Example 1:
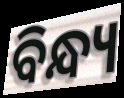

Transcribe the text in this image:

ବିନ୍ଧ୍ୟ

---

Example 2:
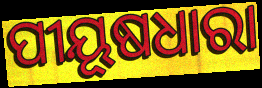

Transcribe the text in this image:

ପୀୟୂଷଧାରା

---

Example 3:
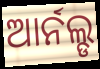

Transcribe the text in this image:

ଆର୍ନଲ୍ଡ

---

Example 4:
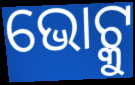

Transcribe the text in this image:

ଭୋଟ୍କୁ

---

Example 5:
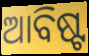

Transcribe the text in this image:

ଆବିଷ୍ଟ